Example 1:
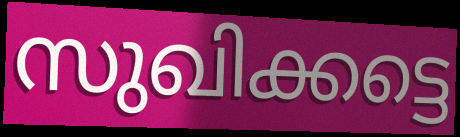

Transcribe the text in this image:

സുഖിക്കട്ടെ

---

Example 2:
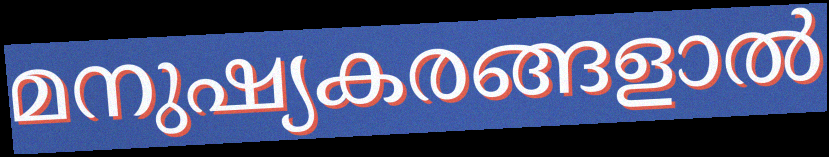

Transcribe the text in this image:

മനുഷ്യകരങ്ങളാൽ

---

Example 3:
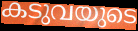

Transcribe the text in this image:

കടുവയുടെ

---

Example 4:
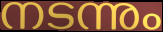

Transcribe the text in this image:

നടന്നും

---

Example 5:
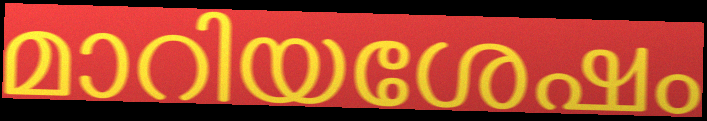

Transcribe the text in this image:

മാറിയശേഷം